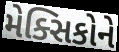
મેક્સિકોને